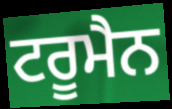
ਟਰੂਮੈਨ